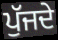
ਪੁੱਜਦੇ